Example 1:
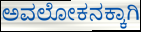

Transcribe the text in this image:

ಅವಲೋಕನಕ್ಕಾಗಿ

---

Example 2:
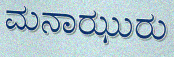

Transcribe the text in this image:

ಮನಾಝುರು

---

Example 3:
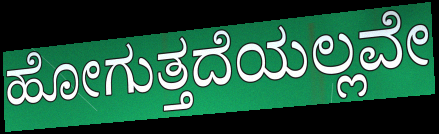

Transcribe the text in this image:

ಹೋಗುತ್ತದೆಯಲ್ಲವೇ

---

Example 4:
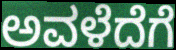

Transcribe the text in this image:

ಅವಳೆದೆಗೆ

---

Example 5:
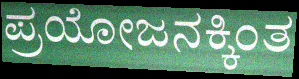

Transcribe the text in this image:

ಪ್ರಯೋಜನಕ್ಕಿಂತ